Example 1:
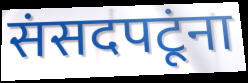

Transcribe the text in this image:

संसदपटूंना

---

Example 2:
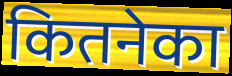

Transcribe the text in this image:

कितनेका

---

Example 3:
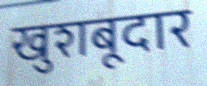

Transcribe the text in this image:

खुशबूदार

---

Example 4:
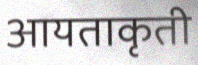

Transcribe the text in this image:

आयताकृती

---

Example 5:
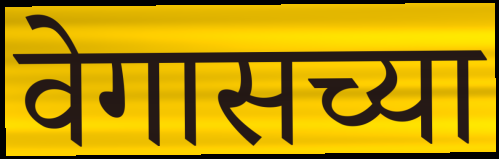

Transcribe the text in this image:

वेगासच्या